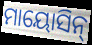
ମାୟୋସିନ୍